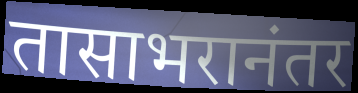
तासाभरानंतर